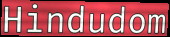
Hindudom